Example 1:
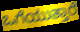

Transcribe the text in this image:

ಒಗೆಯುತ್ತಾರೆ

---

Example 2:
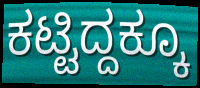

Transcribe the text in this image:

ಕಟ್ಟಿದ್ದಕ್ಕೂ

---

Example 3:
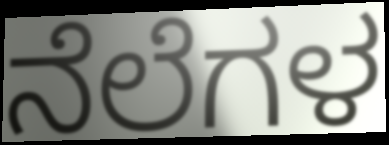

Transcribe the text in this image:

ನೆಲೆಗಳ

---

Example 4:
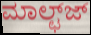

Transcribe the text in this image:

ಮಾಲ್ಟ್‌ಜ್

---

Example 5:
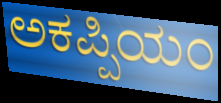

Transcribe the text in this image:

ಅಕಪ್ಪಿಯಂ